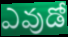
ఎవుడో